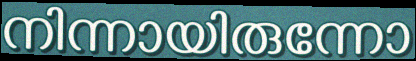
നിന്നായിരുന്നോ